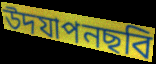
উদযাপনছবি